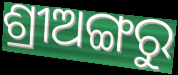
ଶ୍ରୀଅଙ୍ଗରୁ